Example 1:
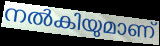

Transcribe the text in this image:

നൽകിയുമാണ്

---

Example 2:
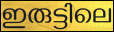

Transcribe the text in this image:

ഇരുട്ടിലെ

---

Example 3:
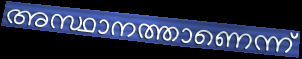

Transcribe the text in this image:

അസ്ഥാനത്താണെന്ന്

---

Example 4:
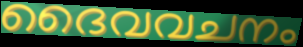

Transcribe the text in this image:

ദൈവവചനം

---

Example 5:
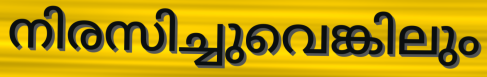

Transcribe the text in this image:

നിരസിച്ചുവെങ്കിലും